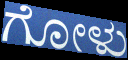
ಗೋಳು